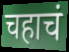
चहाचं